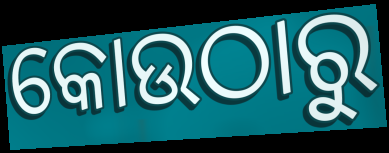
କୋଉଠାରୁ